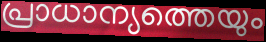
പ്രാധാന്യത്തെയും